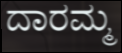
ದಾರಮ್ಮ